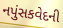
નપુંસકવેદની